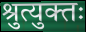
श्रुत्युक्तः